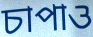
চাপাও